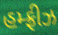
હમ્ફ્રીઝ